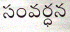
సంవర్ధన